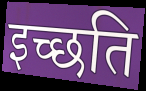
इच्छति